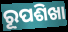
ରୂପଶିଖା